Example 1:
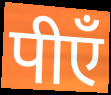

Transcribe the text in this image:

पीएँ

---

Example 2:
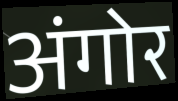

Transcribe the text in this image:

अंगोर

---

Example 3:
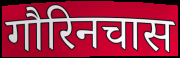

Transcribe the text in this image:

गौरिनचास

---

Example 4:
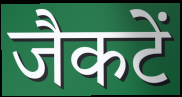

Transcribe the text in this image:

जैकटें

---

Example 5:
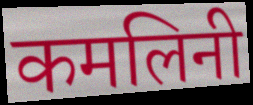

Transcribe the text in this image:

कमलिनी